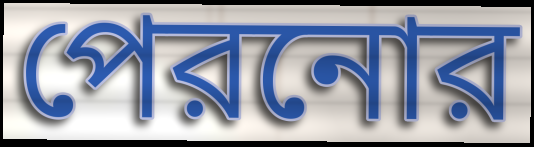
পেরনোর